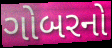
ગોબરનો